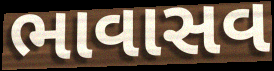
ભાવાસવ